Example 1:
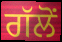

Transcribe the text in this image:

ਗੱਲੋਂ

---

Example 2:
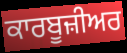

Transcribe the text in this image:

ਕਾਰਬੂਜ਼ੀਅਰ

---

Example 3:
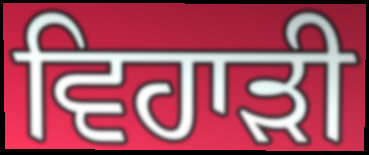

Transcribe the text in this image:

ਵਿਹਾੜੀ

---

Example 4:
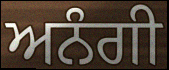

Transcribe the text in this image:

ਅਨੰਗੀ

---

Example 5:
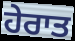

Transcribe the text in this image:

ਹੇਰਾਤ